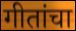
गीतांचा